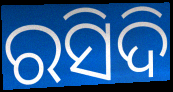
ରସିଦି